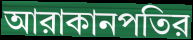
আরাকানপতির